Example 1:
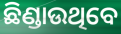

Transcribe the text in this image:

ଛିଣ୍ଡାଉଥିବେ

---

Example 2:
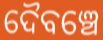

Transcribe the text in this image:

ଦୈବଞ୍ଚେ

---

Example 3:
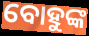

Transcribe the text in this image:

ବୋହୁଙ୍କ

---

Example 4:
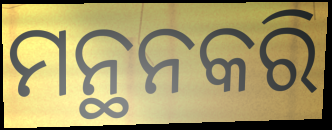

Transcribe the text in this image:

ମନ୍ଥନକରି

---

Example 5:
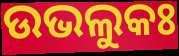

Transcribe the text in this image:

ଉଭଲୁକଃ